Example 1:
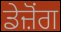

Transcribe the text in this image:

ਡੇਜ਼ੋਂਗ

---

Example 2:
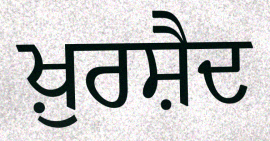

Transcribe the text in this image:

ਖ਼ੁਰਸ਼ੈਦ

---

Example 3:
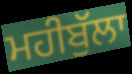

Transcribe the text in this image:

ਮਹੀਬੁੱਲਾ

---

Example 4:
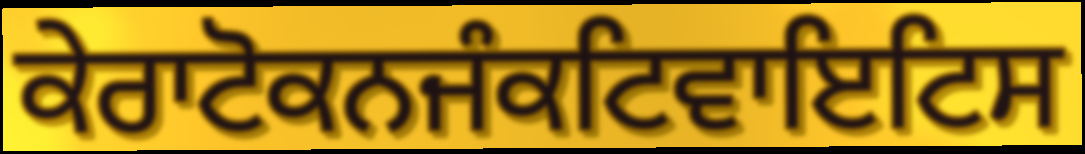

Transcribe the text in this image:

ਕੇਰਾਟੋਕਨਜੰਕਟਿਵਾਇਟਿਸ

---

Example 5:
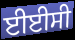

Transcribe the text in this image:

ਈਈਸੀ